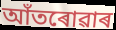
আঁতৰোৱাৰ